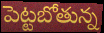
పెట్టబోతున్న